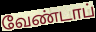
வேண்டாப்